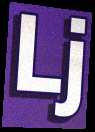
Lj